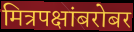
मित्रपक्षांबरोबर